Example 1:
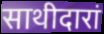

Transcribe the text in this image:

साथीदारां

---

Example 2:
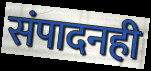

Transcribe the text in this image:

संपादनही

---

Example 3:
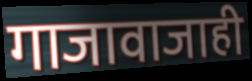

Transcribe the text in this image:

गाजावाजाही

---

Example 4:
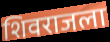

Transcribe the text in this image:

शिवराजला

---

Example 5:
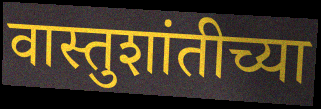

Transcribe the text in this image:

वास्तुशांतीच्या